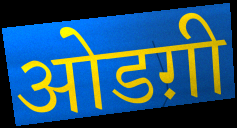
ओडग़ी